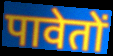
पावेतों